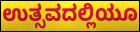
ಉತ್ಸವದಲ್ಲಿಯೂ